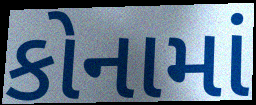
કોનામાં